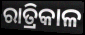
ରାତ୍ରିକାଳ